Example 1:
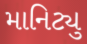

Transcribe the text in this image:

માનિટ્યુ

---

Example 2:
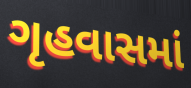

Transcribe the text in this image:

ગૃહવાસમાં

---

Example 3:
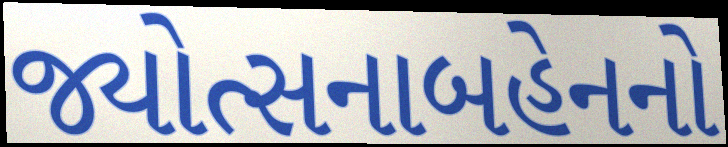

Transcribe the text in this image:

જ્યોત્સનાબહેનનો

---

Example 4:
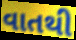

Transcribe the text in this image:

વાતથી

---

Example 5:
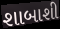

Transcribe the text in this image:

શાબાશી